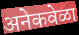
अनेकवेळा